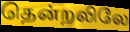
தென்றலிலே